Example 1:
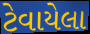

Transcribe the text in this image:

ટેવાયેલા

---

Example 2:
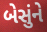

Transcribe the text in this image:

બેસુંને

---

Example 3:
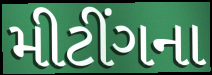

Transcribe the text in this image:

મીટીંગના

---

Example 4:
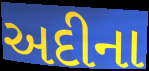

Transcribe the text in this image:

અદીના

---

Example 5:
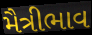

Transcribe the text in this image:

મૈત્રીભાવ